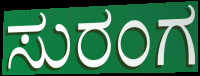
ಸುರಂಗ